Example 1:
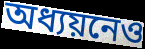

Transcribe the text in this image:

অধ্যয়নেও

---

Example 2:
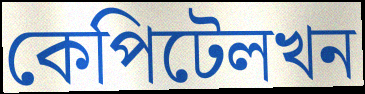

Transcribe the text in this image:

কেপিটেলখন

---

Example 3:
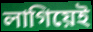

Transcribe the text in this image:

লাগিয়েই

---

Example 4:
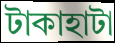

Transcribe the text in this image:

টাকাহাটা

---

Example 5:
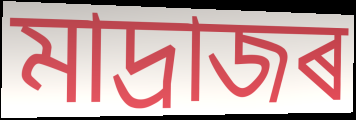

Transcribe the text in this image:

মাদ্ৰাজৰ